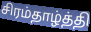
சிரம்தாழ்த்தி